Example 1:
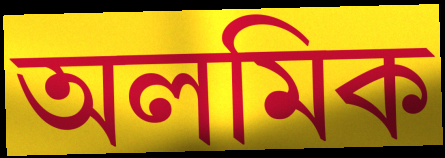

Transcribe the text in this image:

অলমিক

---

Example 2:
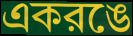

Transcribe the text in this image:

একরঙে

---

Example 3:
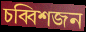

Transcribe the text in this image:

চব্বিশজন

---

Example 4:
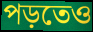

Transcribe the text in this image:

পড়তেও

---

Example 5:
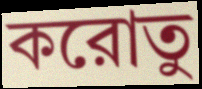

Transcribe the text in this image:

করোতু